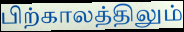
பிற்காலத்திலும்